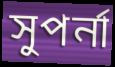
সুপর্না